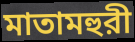
মাতামহুরী